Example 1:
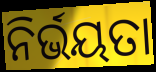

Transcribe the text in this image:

ନିର୍ଭୟତା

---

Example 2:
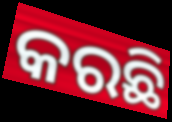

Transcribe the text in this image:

କରଛି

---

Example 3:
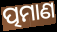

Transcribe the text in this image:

ତ୍ପମାଣ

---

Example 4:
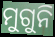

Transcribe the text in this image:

ମୁଗୁନି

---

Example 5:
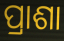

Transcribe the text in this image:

ପ୍ରାଶା